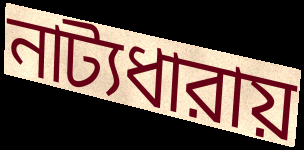
নাট্যধারায়